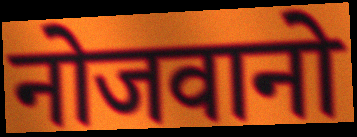
नोजवानो